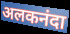
अलकनंदा